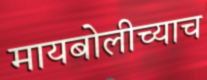
मायबोलीच्याच